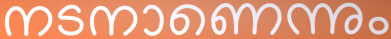
നടനാണെന്നും